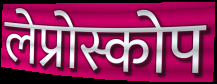
लेप्रोस्कोप